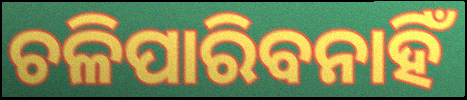
ଚଳିପାରିବନାହିଁ